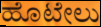
ಹೊಟೇಲು